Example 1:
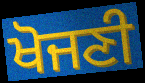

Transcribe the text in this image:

ਖੋਜਣੀ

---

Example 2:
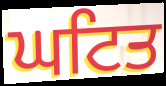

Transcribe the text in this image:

ਘਟਿਤ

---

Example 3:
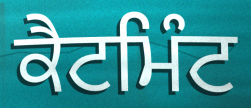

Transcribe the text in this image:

ਕੈਟਮਿੰਟ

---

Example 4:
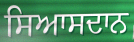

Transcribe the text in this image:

ਸਿਆਸਦਾਨ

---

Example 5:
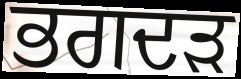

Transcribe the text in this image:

ਭਗਦੜ